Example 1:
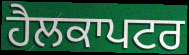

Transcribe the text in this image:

ਹੈਲਕਾਪਟਰ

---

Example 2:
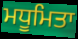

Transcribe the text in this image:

ਮਧੂਮਿਤਾ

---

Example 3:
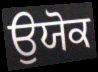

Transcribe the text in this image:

ਉਯੋਕ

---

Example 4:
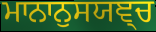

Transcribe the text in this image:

ਮਾਨਾਨੁਸਯਞ੍ਚ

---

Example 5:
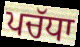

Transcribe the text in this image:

ਪਚੱਧਾ